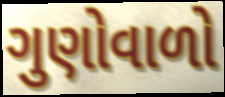
ગુણોવાળો